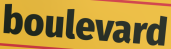
boulevard